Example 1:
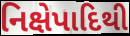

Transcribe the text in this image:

નિક્ષેપાદિથી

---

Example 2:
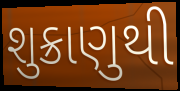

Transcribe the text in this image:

શુક્રાણુથી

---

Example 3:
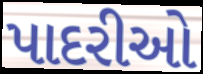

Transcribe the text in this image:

પાદરીઓ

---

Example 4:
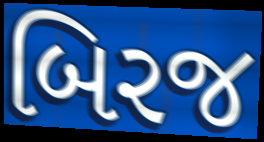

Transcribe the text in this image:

બિરજ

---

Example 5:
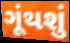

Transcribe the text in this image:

ગૂંથશું